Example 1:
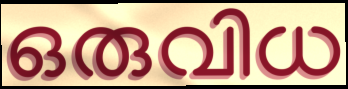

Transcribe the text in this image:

ഒരുവിധ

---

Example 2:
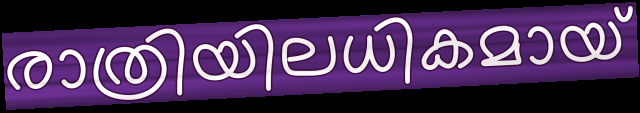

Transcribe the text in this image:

രാത്രിയിലധികമായ്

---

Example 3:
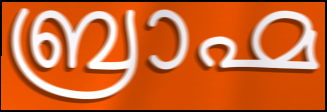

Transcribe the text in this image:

ബ്രാഹ്മ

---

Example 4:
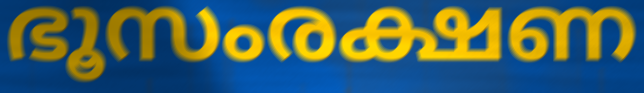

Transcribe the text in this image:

ഭൂസംരക്ഷണ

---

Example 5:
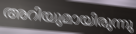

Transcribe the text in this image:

അറിയുമായിരുന്നു